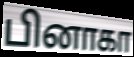
பினாகா